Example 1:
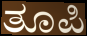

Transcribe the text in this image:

ತೂಪಿ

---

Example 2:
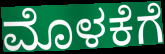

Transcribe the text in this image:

ಮೊಳಕೆಗೆ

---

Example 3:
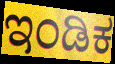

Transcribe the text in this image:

ಇಂಡಿಕ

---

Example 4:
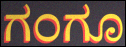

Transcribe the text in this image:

ಗಂಗೂ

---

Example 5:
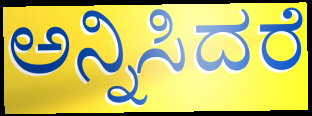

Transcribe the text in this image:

ಅನ್ನಿಸಿದರೆ